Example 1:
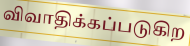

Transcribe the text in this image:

விவாதிக்கப்படுகிற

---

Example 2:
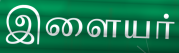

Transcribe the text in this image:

இளையர்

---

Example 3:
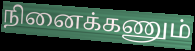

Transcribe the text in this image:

நினைக்கணும்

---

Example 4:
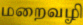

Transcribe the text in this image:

மறைவழி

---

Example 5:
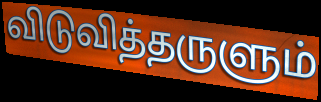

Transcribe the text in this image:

விடுவித்தருளும்